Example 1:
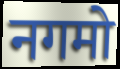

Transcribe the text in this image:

नगमो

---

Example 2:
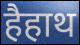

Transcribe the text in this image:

हैहाथ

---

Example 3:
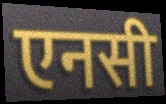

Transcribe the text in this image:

एनसी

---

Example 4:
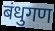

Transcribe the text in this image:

बंधुगण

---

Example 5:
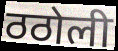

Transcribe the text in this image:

ठठोली